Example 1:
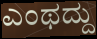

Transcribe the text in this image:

ಎಂಥದ್ದು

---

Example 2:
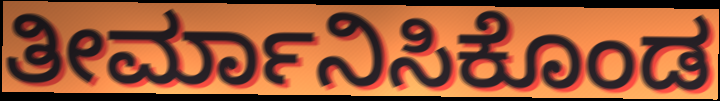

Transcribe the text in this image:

ತೀರ್ಮಾನಿಸಿಕೊಂಡ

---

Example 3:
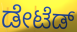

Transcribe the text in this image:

ಡೇಟೆಡ್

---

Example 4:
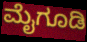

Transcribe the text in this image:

ಮೈಗೂಡಿ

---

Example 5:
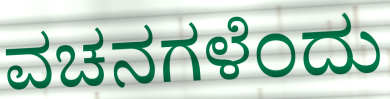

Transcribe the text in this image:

ವಚನಗಳೆಂದು